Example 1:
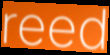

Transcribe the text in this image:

reed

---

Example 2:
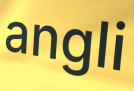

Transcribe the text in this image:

angli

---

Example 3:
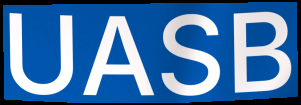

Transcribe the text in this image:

UASB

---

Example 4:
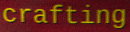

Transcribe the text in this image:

crafting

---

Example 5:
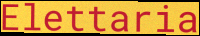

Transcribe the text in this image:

Elettaria